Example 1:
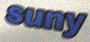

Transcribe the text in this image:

suny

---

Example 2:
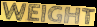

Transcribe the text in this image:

WEIGHT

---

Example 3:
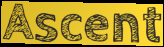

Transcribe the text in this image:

Ascent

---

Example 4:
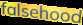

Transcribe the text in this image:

falsehood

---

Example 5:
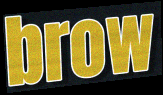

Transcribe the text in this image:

brow